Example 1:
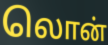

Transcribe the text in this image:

லொன்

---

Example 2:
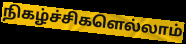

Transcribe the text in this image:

நிகழ்ச்சிகளெல்லாம்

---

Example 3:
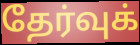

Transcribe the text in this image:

தேர்வுக்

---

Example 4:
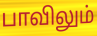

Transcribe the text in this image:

பாவிலும்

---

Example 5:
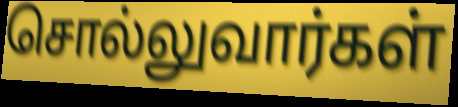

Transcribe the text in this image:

சொல்லுவார்கள்